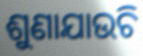
ଶୁଣାଯାଉଚି